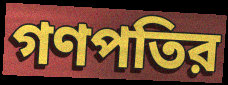
গণপতির